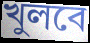
খুলবে